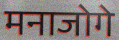
मनाजोगे